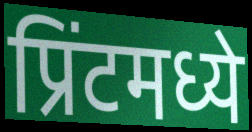
प्रिंटमध्ये